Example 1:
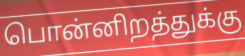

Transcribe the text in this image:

பொன்னிறத்துக்கு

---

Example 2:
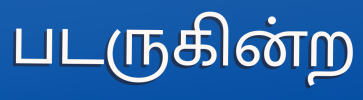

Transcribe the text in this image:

படருகின்ற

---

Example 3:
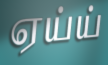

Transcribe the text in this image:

ஏய்ய்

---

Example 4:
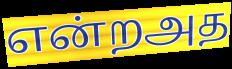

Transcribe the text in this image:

என்றஅத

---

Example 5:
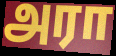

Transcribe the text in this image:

அரா